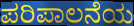
ಪರಿಪಾಲನೆಯ